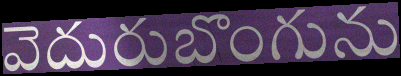
వెదురుబొంగును